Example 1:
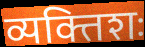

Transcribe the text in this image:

व्यक्तिशः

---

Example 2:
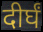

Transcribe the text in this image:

दीर्घं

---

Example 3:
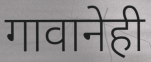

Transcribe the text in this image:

गावानेही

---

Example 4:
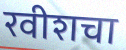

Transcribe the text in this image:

रवीशचा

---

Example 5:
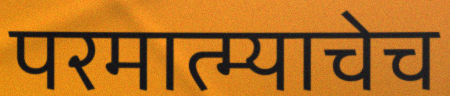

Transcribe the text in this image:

परमात्म्याचेच